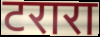
टरारा